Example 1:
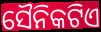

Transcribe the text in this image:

ସୈନିକଟିଏ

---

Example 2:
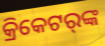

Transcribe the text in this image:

କ୍ରିକେଟର୍‌ଙ୍କ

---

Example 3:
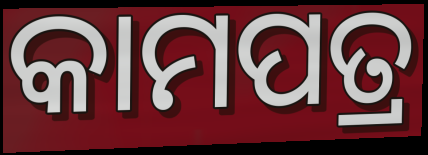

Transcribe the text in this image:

କାମପତ୍ର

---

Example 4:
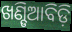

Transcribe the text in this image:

ଖଣ୍ଡିଆବିଡ଼ି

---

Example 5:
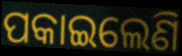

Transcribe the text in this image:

ପକାଇଲେଣି